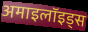
अमाइलॉइड्स